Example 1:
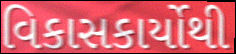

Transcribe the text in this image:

વિકાસકાર્યોથી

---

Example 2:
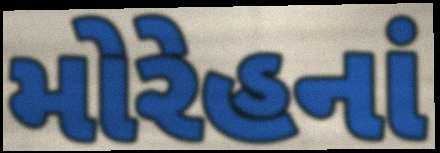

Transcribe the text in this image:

મોરેહનાં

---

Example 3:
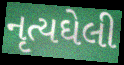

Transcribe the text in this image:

નૃત્યઘેલી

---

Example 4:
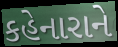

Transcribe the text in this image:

કહેનારાને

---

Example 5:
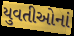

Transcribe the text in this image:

યુવતીઓનાં